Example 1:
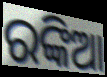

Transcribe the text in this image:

ରଙ୍କିଆ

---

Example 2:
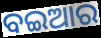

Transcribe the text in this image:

ବଇଆର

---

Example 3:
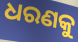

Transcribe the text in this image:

ଧରଣକୁ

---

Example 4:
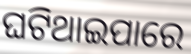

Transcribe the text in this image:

ଘଟିଥାଇପାରେ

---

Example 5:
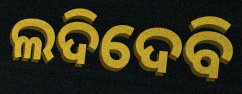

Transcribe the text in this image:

ଲଦିଦେବି